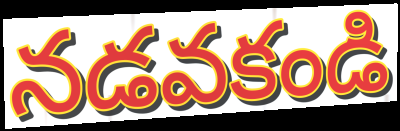
నడవకండి